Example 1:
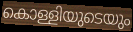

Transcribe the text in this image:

കൊള്ളിയുടെയും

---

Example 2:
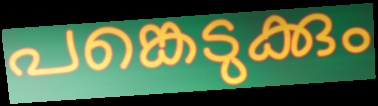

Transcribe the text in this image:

പങ്കെടുക്കും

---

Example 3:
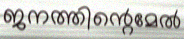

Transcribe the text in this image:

ജനത്തിന്റെമേൽ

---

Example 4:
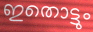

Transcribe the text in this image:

ഇതൊട്ടും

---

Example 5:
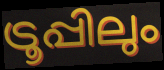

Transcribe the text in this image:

ട്രൂപ്പിലും